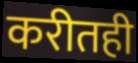
करीतही